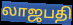
லாஜபதி